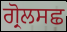
ਗ੍ਰੋਲਸਛ